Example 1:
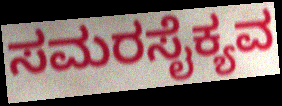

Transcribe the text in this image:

ಸಮರಸೈಕ್ಯವ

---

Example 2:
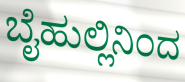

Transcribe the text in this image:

ಬೈಹುಲ್ಲಿನಿಂದ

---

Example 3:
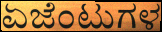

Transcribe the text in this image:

ಏಜೆಂಟುಗಳ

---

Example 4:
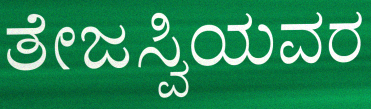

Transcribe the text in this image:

ತೇಜಸ್ವಿಯವರ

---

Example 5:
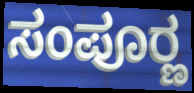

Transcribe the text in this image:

ಸಂಪೂರ್‍ಣ